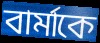
বার্মাকে